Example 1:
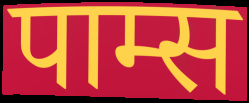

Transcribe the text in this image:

पाम्स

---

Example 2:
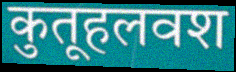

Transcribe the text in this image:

कुतूहलवश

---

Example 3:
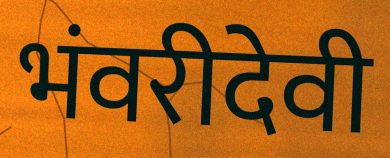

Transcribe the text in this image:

भंवरीदेवी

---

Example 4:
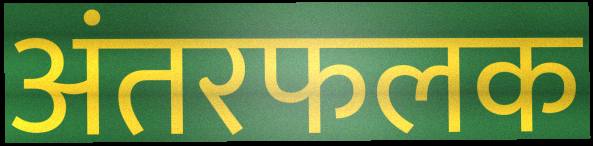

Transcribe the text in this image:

अंतरफलक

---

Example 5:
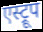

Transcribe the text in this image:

एस्ट्रूप